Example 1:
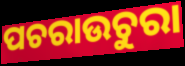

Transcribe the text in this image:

ପଚରାଉଚୁରା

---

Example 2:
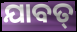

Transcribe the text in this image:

ଯାବତ୍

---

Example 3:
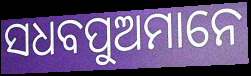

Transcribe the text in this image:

ସଧବପୁଅମାନେ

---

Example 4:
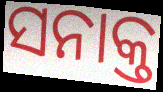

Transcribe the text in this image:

ସନାକ୍ତ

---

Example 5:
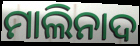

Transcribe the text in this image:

ମାଲିନାଦ